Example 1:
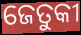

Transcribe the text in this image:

ଜେତୁକୀ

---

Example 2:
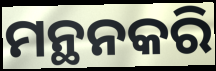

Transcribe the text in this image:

ମନ୍ଥନକରି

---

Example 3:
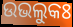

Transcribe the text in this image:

ଉଭଲୁକଃ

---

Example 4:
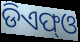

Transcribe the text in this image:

ଡିଏଫ୍ଓ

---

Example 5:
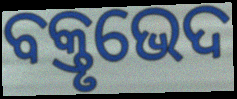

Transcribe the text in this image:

ବକ୍ତୃଭେଦ